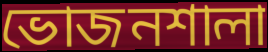
ভোজনশালা